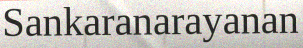
Sankaranarayanan